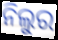
ନିଲୁର